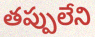
తప్పులేని